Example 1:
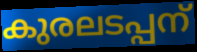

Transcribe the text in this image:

കുരലടപ്പന്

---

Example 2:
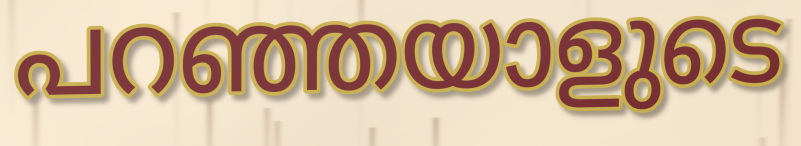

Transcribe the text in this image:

പറഞ്ഞയാളുടെ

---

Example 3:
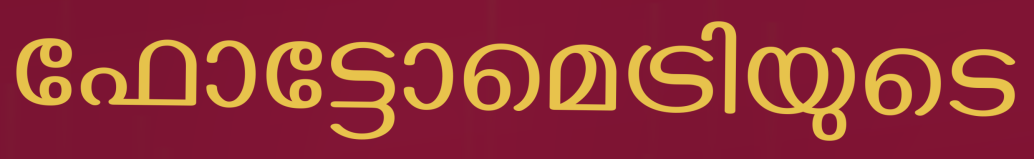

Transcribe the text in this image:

ഫോട്ടോമെട്രിയുടെ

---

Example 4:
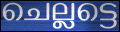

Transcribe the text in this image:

ചെല്ലട്ടെ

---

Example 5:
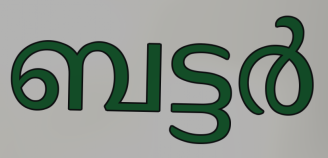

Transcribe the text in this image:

ബട്ടർ